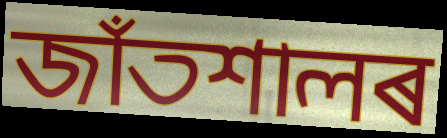
জাঁতশালৰ